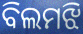
ବିଲମଝି